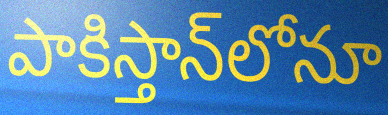
పాకిస్తాన్‌లోనూ